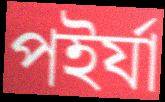
পইর্যা